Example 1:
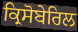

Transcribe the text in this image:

ਕ੍ਰਿਸੋਬੇਰਿਲ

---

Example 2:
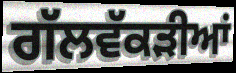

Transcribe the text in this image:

ਗੱਲਵੱਕੜੀਆਂ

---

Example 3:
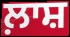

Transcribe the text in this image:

ਲ਼ਾਸ਼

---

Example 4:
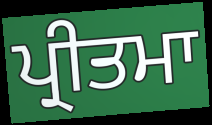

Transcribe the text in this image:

ਪ੍ਰੀਤਮਾ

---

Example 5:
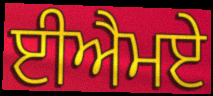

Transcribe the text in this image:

ਈਐਮਏ